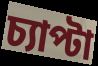
চ্যাপ্টা